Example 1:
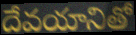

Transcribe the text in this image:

దేవయానితో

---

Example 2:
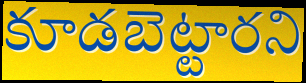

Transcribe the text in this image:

కూడబెట్టారని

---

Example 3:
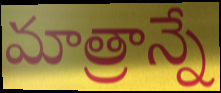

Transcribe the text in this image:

మాత్రాన్నే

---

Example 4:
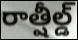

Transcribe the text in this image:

రాత్షీల్డ్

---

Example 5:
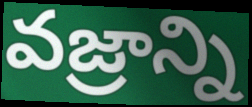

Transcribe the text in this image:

వజ్రాన్ని